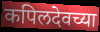
कपिलदेवच्या